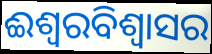
ଈଶ୍ୱରବିଶ୍ୱାସର